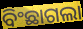
ବିଂଛାଗଲା